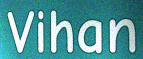
Vihan